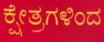
ಕ್ಷೇತ್ರಗಳಿಂದ